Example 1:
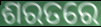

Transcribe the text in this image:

ଶରତରେ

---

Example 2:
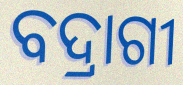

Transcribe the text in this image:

ବଦ୍ରାଗୀ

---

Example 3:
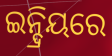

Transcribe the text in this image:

ଇନ୍ଦ୍ରିୟରେ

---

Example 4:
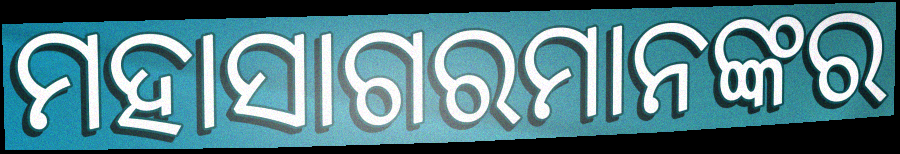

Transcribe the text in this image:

ମହାସାଗରମାନଙ୍କର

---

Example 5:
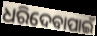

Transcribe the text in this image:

ଧରିଦେବାପାଇଁ